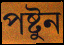
পষ্টুন